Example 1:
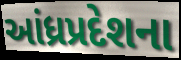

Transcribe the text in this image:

આંધ્રપ્રદેશના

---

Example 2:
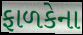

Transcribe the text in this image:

ફાળકેના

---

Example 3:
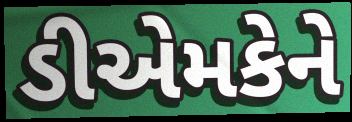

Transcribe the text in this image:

ડીએમકેને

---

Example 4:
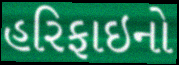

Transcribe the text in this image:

હરિફાઇનો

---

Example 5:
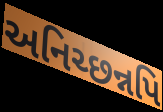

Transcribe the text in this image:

અનિચ્છન્નપિ